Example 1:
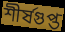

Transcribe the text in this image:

শীর্ষগুপ্ত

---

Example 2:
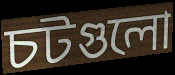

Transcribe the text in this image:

চটগুলো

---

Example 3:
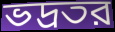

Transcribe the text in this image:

ভদ্রতর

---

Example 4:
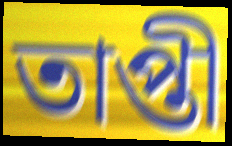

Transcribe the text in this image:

তাপ্তী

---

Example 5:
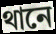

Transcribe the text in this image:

থানে